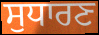
ਸੁਧਾਰਣ